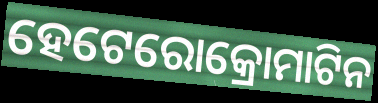
ହେଟେରୋକ୍ରୋମାଟିନ